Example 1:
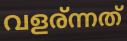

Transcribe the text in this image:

വളര്ന്നത്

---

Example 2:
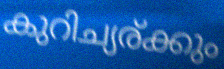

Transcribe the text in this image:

കുറിച്യര്ക്കും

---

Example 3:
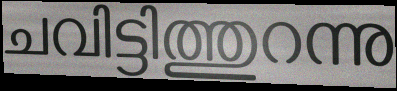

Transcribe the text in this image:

ചവിട്ടിത്തുറന്നു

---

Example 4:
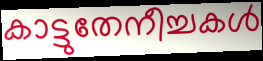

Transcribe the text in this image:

കാട്ടുതേനീച്ചകൾ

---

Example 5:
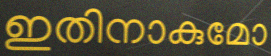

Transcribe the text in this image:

ഇതിനാകുമോ